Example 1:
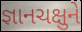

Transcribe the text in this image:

જ્ઞાનચક્ષુને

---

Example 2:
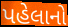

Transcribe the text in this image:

પહેલાનો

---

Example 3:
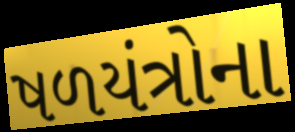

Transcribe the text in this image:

ષળયંત્રોના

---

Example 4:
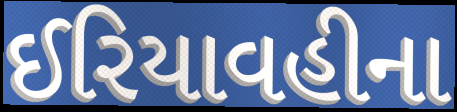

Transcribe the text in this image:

ઈરિયાવહીના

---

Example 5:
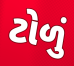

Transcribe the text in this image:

ટોળું